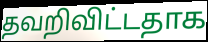
தவறிவிட்டதாக